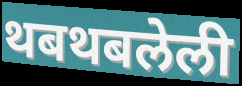
थबथबलेली